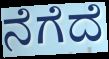
ನೆಗೆದೆ